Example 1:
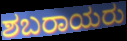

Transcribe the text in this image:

ಶಬರಾಯರು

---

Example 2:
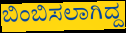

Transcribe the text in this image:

ಬಿಂಬಿಸಲಾಗಿದ್ದ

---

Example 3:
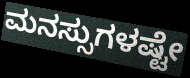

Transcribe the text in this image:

ಮನಸ್ಸುಗಳಷ್ಟೇ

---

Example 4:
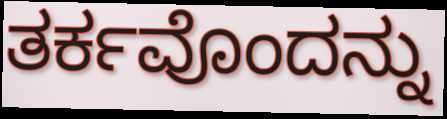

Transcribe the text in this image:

ತರ್ಕವೊಂದನ್ನು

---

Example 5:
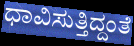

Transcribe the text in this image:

ಧಾವಿಸುತ್ತಿದ್ದಂತೆ